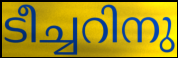
ടീച്ചറിനു